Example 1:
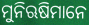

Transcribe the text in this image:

ମୁନିଋଷିମାନେ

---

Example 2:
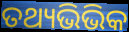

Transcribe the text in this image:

ତଥ୍ୟଭିଭିକ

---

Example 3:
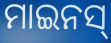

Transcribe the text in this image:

ମାଇନସ୍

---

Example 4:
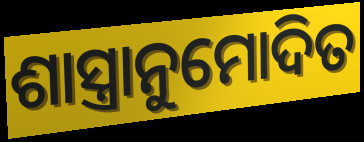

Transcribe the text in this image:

ଶାସ୍ତ୍ରାନୁମୋଦିତ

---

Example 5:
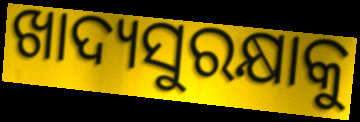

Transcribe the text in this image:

ଖାଦ୍ୟସୁରକ୍ଷାକୁ